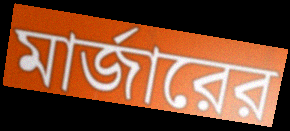
মার্জারের